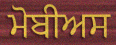
ਮੋਬੀਅਸ